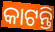
କାଟନ୍ତି